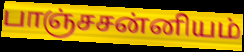
பாஞ்சசன்னியம்